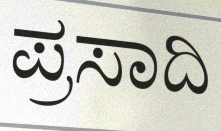
ಪ್ರಸಾದಿ